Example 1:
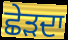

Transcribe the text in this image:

ਛੇੜਦਾ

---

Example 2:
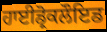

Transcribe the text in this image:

ਹਾਈਡ੍ਰੋਕਲੌਇਡ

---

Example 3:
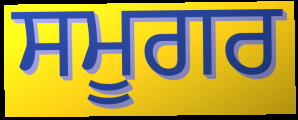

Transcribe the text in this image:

ਸਮੂਗਰ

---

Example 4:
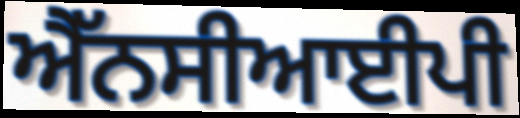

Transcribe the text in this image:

ਐੱਨਸੀਆਈਪੀ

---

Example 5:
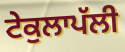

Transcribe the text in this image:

ਟੇਕੁਲਾਪੱਲੀ